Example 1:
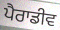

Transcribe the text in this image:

ਪੈਰਾਡੀਵ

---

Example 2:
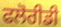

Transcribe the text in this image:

ਫਲੋਰੀਡੀ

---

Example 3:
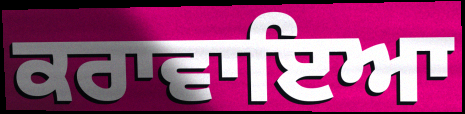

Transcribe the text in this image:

ਕਰਾਵਾਇਆ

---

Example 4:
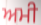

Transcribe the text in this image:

ਅਮੀ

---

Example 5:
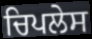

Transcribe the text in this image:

ਚਿਪਲੇਸ